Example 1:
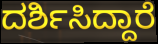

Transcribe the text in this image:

ದರ್ಶಿಸಿದ್ದಾರೆ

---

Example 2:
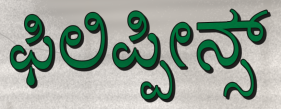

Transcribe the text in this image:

ಫಿಲಿಪ್ಪೀನ್ಸ್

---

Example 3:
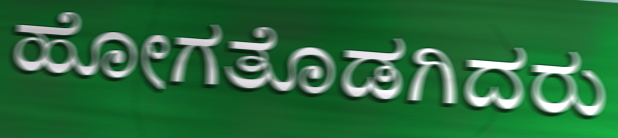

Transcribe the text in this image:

ಹೋಗತೊಡಗಿದರು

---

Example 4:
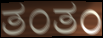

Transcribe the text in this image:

ತಂತಂ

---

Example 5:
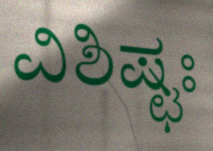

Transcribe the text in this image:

ವಿಶಿಷ್ಟಃ